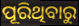
ପୂରିଥିବାରୁ